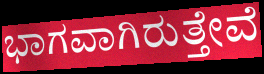
ಭಾಗವಾಗಿರುತ್ತೇವೆ